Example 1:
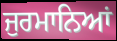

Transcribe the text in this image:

ਜੁਰਮਾਨਿਆਂ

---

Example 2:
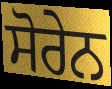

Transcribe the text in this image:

ਸੋਰੇਨ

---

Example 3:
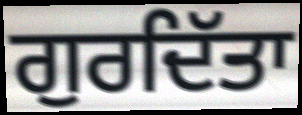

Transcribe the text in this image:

ਗੁਰਦਿੱਤਾ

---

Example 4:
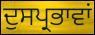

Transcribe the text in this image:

ਦੁਸਪ੍ਰਭਾਵਾਂ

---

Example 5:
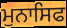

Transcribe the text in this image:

ਮੁਨਾਸਿਫ